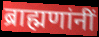
ब्राह्मणांनीं